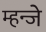
म्हन्जे